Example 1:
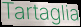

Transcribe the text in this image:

Tartaglia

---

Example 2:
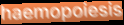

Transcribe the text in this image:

haemopoiesis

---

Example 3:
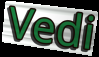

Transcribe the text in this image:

Vedi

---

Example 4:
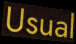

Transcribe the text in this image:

Usual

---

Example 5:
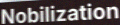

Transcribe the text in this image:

Nobilization